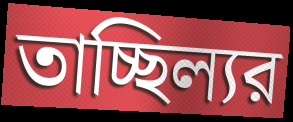
তাচ্ছিল্যর